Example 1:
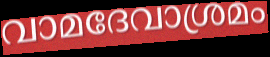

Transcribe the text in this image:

വാമദേവാശ്രമം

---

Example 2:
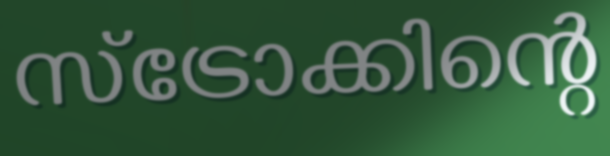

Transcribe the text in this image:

സ്ട്രോക്കിന്റെ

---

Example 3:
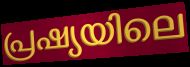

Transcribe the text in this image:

പ്രഷ്യയിലെ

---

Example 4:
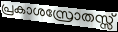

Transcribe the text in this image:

പ്രകാശസ്രോതസ്സ്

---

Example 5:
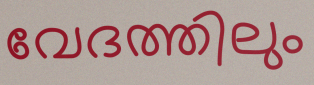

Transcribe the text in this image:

വേദത്തിലും